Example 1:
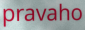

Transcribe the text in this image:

pravaho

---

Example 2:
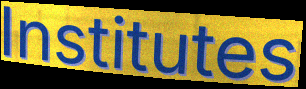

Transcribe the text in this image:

Institutes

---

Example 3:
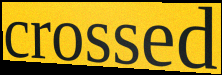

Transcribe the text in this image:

crossed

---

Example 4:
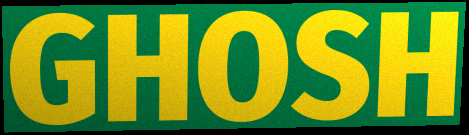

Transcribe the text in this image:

GHOSH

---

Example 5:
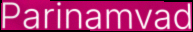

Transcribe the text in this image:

Parinamvad